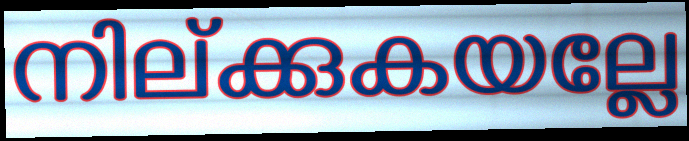
നില്ക്കുകയല്ലേ